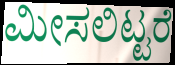
ಮೀಸಲಿಟ್ಟರೆ